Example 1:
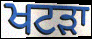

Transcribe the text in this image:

ਖਟੜਾ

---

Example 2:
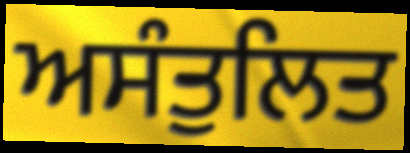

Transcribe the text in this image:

ਅਸੰਤੁਲਿਤ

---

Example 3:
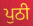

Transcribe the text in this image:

ਪੁਠੀ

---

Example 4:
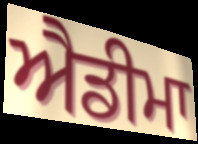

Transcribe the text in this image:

ਐਡੀਮਾ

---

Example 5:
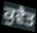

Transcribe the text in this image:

ਕੁਵੈਤ